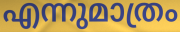
എന്നുമാത്രം